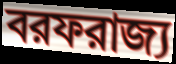
বরফরাজ্য